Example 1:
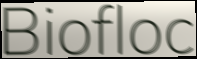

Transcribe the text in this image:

Biofloc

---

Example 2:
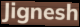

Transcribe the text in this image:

Jignesh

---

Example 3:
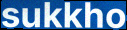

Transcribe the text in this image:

sukkho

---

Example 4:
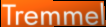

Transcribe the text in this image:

Tremmel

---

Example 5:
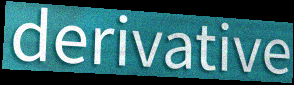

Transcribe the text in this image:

derivative